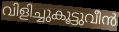
വിളിച്ചുകൂട്ടുവീൻ